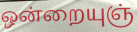
ஒன்றையுஞ்